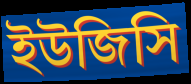
ইউজিসি